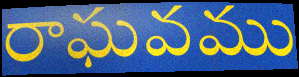
రాఘవము